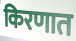
किरणात